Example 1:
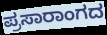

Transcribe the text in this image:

ಪ್ರಸಾರಾಂಗದ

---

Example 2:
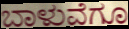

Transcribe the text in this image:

ಬಾಳುವೆಗೂ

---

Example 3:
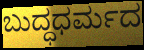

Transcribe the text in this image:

ಬುದ್ಧಧರ್ಮದ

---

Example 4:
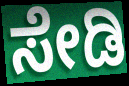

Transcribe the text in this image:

ಸೇಡಿ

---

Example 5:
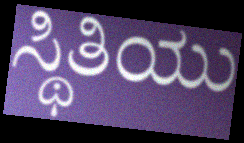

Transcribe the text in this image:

ಸ್ಥಿತಿಯು